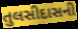
તુલસીદાસની